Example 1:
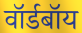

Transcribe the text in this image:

वॉर्डबॉय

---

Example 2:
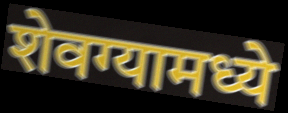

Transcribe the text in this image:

शेवग्यामध्ये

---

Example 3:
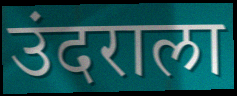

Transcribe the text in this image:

उंदराला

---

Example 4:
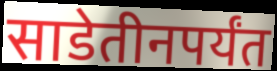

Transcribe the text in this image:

साडेतीनपर्यंत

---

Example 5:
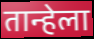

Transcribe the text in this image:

तान्हेला